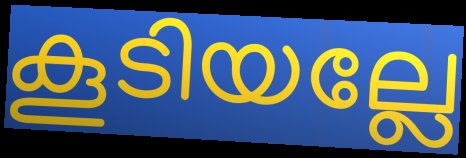
കൂടിയല്ലേ